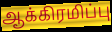
ஆக்கிரமிப்பு